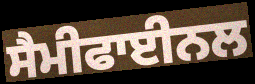
ਸੈਮੀਫਾਈਨਲ